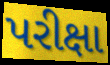
પરીક્ષા